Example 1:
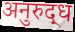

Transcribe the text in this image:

अनुरुद्ध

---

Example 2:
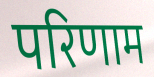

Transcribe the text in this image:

परिणाम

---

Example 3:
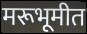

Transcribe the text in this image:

मरूभूमीत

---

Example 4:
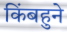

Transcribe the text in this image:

किंबहुने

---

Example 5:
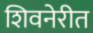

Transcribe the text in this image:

शिवनेरीत